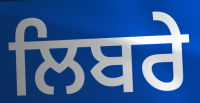
ਲਿਬਰੇ